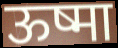
ऊष्मा